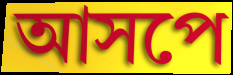
আসপে